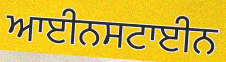
ਆਈਨਸਟਾਈਨ